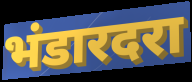
भंडारदरा